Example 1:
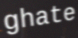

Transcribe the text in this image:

ghate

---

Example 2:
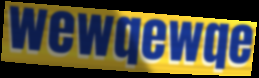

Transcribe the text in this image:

wewqewqe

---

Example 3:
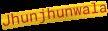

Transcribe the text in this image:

Jhunjhunwala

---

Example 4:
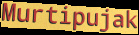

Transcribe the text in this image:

Murtipujak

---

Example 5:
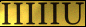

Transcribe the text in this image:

IIIIIU